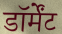
डॉर्मेंट